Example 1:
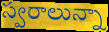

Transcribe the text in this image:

స్వరాలున్నా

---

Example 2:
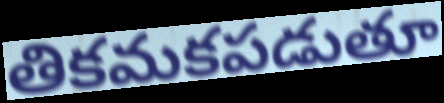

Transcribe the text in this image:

తికమకపడుతూ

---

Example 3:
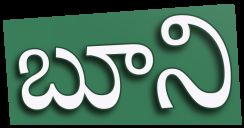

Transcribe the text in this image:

బూని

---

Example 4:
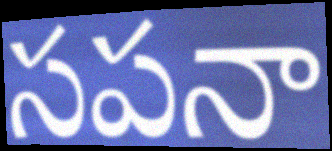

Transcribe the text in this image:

సపనా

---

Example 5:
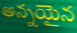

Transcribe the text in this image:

అన్నయైన